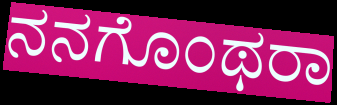
ನನಗೊಂಥರಾ